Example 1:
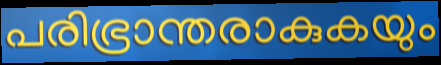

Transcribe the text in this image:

പരിഭ്രാന്തരാകുകയും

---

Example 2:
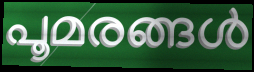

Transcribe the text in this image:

പൂമരങ്ങൾ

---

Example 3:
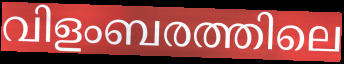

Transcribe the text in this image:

വിളംബരത്തിലെ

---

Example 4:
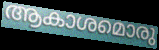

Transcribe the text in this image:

ആകാശമൊരു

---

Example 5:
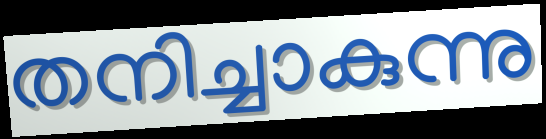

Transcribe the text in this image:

തനിച്ചാകുന്നു